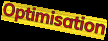
Optimisation